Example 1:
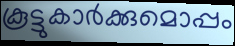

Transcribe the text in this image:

കൂട്ടുകാർക്കുമൊപ്പം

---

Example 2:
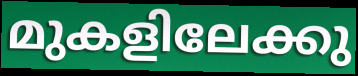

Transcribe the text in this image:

മുകളിലേക്കു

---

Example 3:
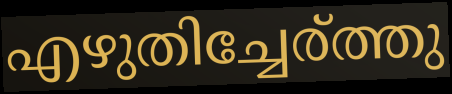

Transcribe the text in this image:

എഴുതിച്ചേര്ത്തു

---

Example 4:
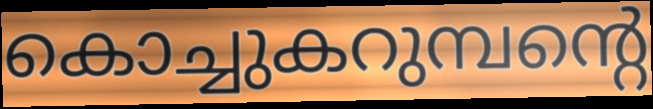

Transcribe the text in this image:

കൊച്ചുകറുമ്പന്റെ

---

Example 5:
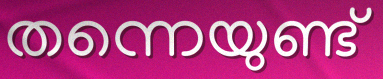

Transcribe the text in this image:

തന്നെയുണ്ട്